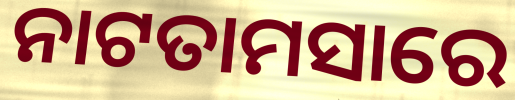
ନାଟତାମସାରେ